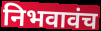
निभवावंच